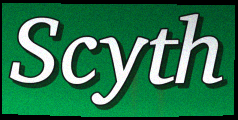
Scyth